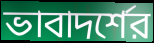
ভাবাদর্শের